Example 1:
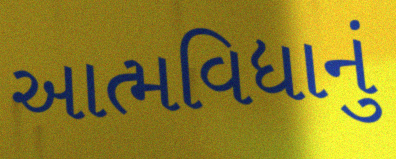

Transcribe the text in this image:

આત્મવિદ્યાનું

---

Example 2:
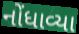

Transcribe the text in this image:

નોંધાવ્યા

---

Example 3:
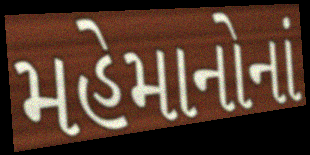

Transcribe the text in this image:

મહેમાનોનાં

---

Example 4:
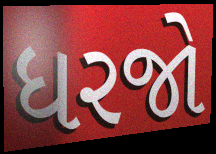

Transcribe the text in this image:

ધરજો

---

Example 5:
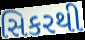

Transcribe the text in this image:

સિકરથી